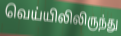
வெய்யிலிலிருந்து